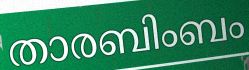
താരബിംബം